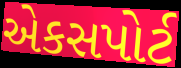
એકસપોર્ટ